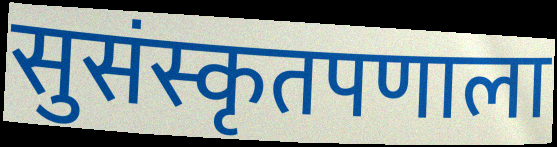
सुसंस्कृतपणाला